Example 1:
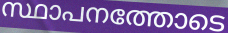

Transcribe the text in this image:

സ്ഥാപനത്തോടെ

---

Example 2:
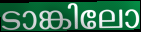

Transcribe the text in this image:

ടാങ്കിലോ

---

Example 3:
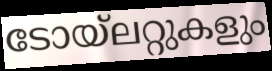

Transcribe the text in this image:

ടോയ്ലറ്റുകളും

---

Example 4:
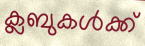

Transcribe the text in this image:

ക്ലബുകൾക്ക്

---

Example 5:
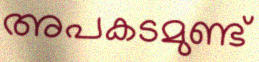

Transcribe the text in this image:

അപകടമുണ്ട്